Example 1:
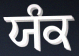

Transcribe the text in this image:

ਯੰਕ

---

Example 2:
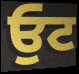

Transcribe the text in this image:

ਓੁਟ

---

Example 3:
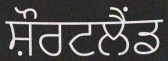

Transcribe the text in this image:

ਸ਼ੌਰਟਲੈਂਡ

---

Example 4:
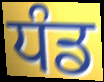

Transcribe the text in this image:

ਧੰਡ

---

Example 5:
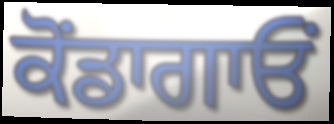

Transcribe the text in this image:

ਕੋਂਡਾਗਾਓਂ